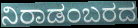
ನಿರಾಡಂಬರದ